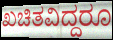
ಖಚಿತವಿದ್ದರೂ